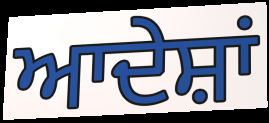
ਆਦੇਸ਼ਾਂ